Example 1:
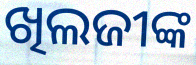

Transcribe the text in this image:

ଖିଲଜୀଙ୍କ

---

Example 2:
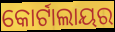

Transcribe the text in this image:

କୋର୍ଟାଲାୟର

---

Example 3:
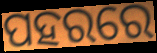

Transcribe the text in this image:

ପହରରେ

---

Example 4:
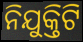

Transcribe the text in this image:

ନିଯୁକ୍ତିଟି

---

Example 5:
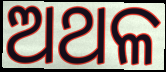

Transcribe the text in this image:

ଅଥଳ